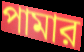
পামার